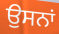
ਉਸਨਾਂ